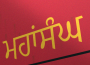
ਮਹਾਂਸੰਘ